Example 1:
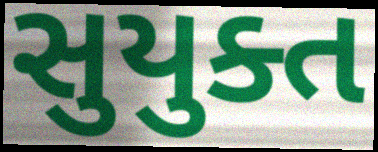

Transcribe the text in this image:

સુયુક્ત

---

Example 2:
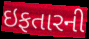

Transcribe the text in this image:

ઇફતારની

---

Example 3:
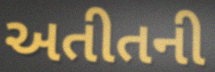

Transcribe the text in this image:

અતીતની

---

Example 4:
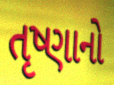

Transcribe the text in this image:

તૃષ્ણાનો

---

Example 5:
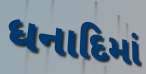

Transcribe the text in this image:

ધનાદિમાં